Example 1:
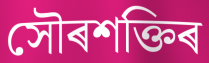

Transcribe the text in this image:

সৌৰশক্তিৰ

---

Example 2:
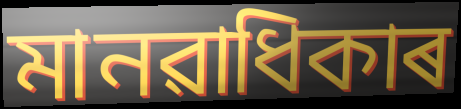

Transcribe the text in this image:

মানৱাধিকাৰ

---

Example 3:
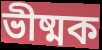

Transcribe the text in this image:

ভীষ্মক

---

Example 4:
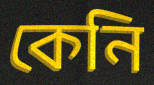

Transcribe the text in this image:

কেনি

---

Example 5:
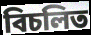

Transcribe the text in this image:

বিচলিত